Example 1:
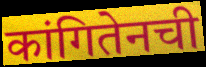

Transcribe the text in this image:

कांगितेनची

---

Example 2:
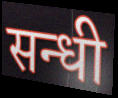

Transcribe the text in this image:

सन्धी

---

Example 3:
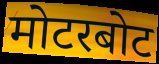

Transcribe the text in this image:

मोटरबोट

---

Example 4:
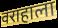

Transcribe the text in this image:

वराहाला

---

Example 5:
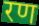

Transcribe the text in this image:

रण